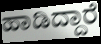
ಹಾಡಿದ್ದಾರೆ